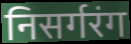
निसर्गरंग